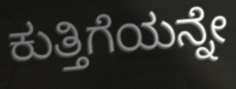
ಕುತ್ತಿಗೆಯನ್ನೇ